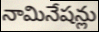
నామినేషన్లు